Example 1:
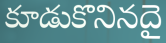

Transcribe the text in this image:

కూడుకొనినదై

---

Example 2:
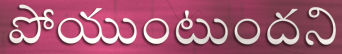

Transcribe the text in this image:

పోయుంటుందని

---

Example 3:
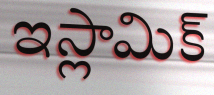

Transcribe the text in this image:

ఇస్లామిక్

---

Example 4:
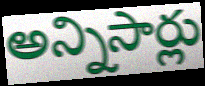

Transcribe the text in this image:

అన్నిసార్లు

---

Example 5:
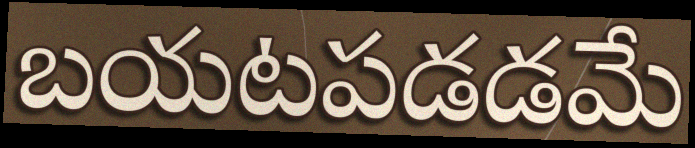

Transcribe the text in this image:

బయటపడడమే